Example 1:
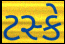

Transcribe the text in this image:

ટસ્કે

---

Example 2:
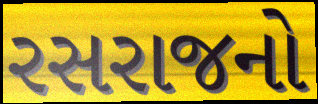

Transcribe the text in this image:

રસરાજનો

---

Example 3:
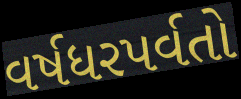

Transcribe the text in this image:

વર્ષધરપર્વતો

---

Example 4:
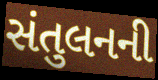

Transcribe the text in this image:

સંતુલનની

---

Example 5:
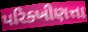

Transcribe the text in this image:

પરિક્ખીણત્તા